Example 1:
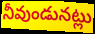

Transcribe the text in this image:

నీవుండునట్లు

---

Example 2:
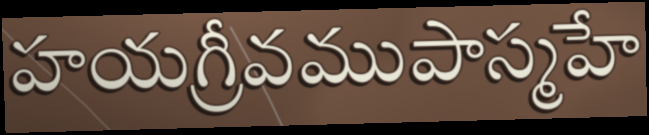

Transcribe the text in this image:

హయగ్రీవముపాస్మహే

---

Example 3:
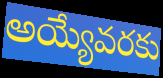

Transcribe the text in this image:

అయ్యేవరకు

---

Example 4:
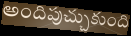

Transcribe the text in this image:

అందిపుచ్చుకుంది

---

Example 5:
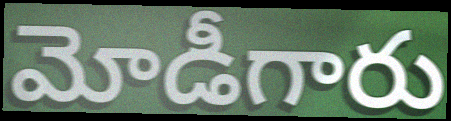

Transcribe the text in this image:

మోడీగారు